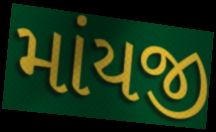
માંયજી